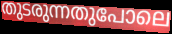
തുടരുന്നതുപോലെ